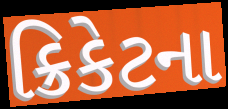
ક્રિકેટના